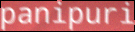
panipuri